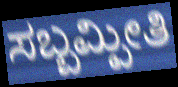
ಸಬ್ಬಮ್ಪೀತಿ